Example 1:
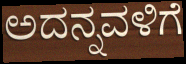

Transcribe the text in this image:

ಅದನ್ನವಳಿಗೆ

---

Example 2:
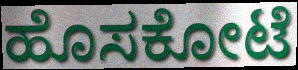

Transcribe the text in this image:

ಹೊಸಕೋಟೆ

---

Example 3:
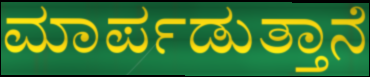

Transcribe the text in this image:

ಮಾರ್ಪಡುತ್ತಾನೆ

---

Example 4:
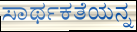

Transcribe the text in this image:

ಸಾರ್ಥಕತೆಯನ್ನ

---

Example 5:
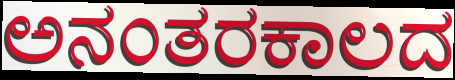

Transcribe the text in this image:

ಅನಂತರಕಾಲದ